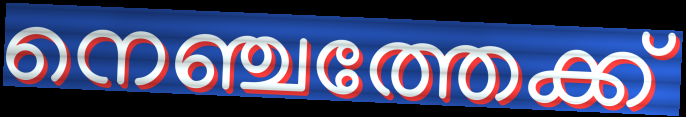
നെഞ്ചത്തേക്ക്